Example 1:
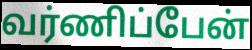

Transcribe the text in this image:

வர்ணிப்பேன்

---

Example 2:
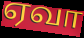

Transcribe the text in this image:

ஏவா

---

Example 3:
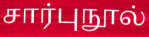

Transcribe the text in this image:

சார்புநூல்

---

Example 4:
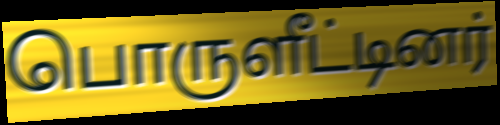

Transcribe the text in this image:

பொருளீட்டினர்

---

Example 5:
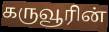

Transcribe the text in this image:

கருவூரின்